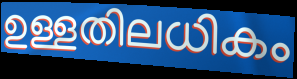
ഉള്ളതിലധികം